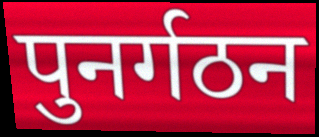
पुनर्गठन